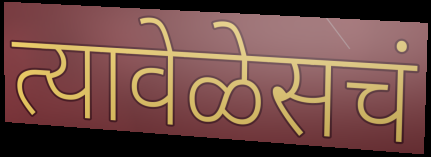
त्यावेळेसचं